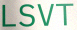
LSVT